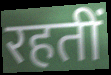
रहतीं